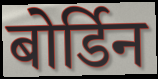
बोर्डिन